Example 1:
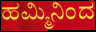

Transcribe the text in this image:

ಹಮ್ಮಿನಿಂದ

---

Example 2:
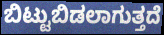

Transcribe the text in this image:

ಬಿಟ್ಟುಬಿಡಲಾಗುತ್ತದೆ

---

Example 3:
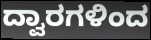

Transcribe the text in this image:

ದ್ವಾರಗಳಿಂದ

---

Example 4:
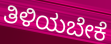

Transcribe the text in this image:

ತಿಳಿಯಬೇಕೆ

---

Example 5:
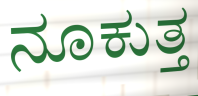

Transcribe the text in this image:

ನೂಕುತ್ತ